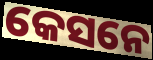
କେସନେ